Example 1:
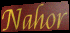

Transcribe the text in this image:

Nahor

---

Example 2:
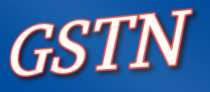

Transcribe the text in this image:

GSTN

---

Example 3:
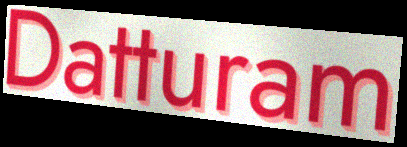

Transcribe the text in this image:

Datturam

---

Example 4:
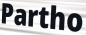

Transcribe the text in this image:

Partho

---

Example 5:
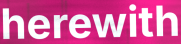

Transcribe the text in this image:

herewith